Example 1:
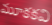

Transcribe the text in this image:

మూకకవి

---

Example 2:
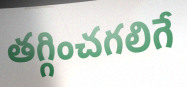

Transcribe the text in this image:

తగ్గించగలిగే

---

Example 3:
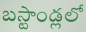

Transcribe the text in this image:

బస్టాండ్లలో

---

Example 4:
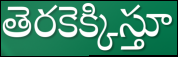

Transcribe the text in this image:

తెరకెక్కిస్తూ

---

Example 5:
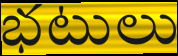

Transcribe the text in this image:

భటులు